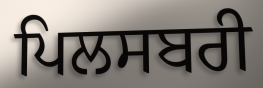
ਪਿਲਸਬਰੀ